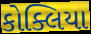
કોક્લિયા